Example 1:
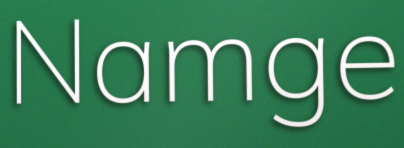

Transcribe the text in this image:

Namge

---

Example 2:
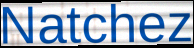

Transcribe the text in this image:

Natchez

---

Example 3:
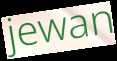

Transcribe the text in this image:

jewan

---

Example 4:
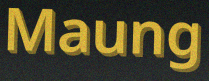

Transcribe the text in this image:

Maung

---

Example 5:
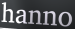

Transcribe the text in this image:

hanno